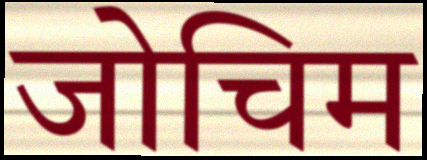
जोचिम